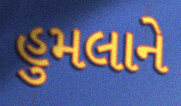
હુમલાને